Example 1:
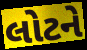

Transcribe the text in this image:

લોટને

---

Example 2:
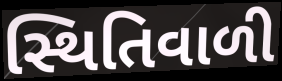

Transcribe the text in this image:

સ્થિતિવાળી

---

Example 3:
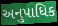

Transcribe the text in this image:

અનુપાધિક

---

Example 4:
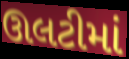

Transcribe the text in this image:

ઊલટીમાં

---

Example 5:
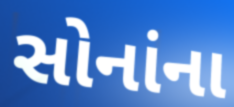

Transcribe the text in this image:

સોનાંના